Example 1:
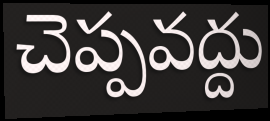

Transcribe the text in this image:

చెప్పవద్దు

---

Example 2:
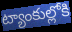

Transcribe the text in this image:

ట్యాంకుల్లోకి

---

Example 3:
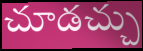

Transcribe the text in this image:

చూడచ్చు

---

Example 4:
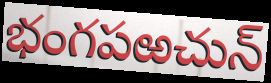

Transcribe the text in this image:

భంగపఱచున్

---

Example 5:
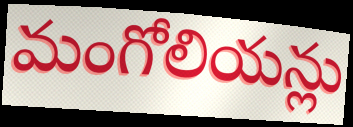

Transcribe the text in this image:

మంగోలియన్లు